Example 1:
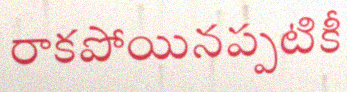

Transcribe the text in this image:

రాకపోయినప్పటికీ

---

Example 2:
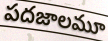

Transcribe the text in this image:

పదజాలమూ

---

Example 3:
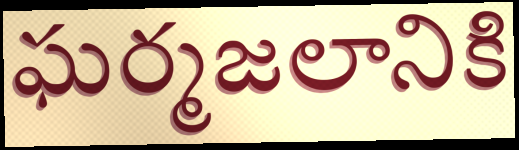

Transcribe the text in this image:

ఘర్మజలానికి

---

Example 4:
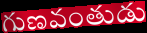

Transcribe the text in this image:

గుణవంతుడు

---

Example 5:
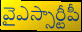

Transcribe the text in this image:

వైఎస్సార్టీపీ